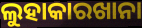
ଲୁହାକାରଖାନା